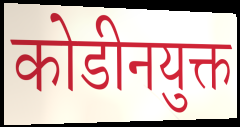
कोडीनयुक्त